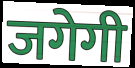
जगेगी